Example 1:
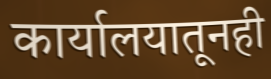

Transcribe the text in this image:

कार्यालयातूनही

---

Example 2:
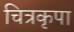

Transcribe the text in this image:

चित्रकृपा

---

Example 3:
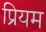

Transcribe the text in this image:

प्रियम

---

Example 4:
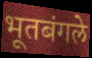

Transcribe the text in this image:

भूतबंगले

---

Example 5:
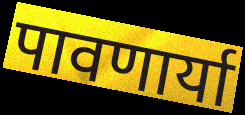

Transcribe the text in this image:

पावणार्या